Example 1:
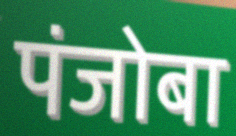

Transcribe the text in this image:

पंजोबा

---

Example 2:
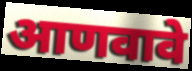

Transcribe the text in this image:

आणवावे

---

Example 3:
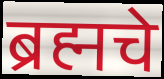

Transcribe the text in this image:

ब्रह्मचे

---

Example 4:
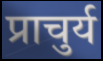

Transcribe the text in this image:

प्राचुर्य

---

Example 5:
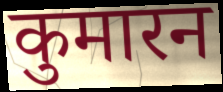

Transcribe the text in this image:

कुमारन